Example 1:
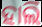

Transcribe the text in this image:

ହାଲି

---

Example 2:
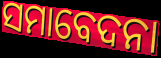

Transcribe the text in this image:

ସମାବେଦନା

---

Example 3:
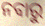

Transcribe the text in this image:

ନବାରୁ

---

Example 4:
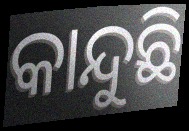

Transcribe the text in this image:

କାନ୍ଦୁଛି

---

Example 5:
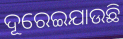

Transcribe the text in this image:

ଦୂରେଇଯାଉଛି